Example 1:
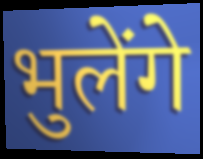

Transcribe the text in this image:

भुलेंगे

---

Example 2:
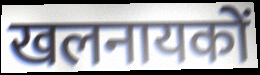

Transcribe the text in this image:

खलनायकों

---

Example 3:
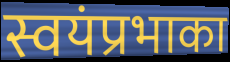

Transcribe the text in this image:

स्वयंप्रभाका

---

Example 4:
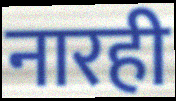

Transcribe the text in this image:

नारही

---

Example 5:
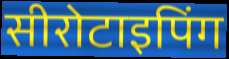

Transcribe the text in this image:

सीरोटाइपिंग